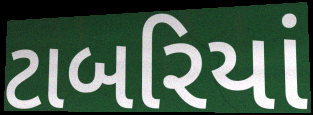
ટાબરિયાં